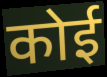
कोई